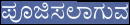
ಪೂಜಿಸಲಾಗುವ